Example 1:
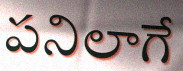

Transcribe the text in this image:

పనిలాగే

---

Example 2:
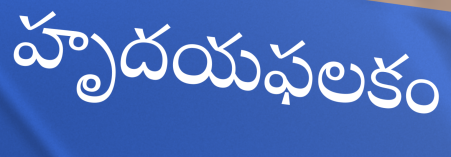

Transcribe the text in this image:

హృదయఫలకం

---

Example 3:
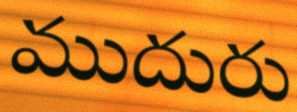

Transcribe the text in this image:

ముదురు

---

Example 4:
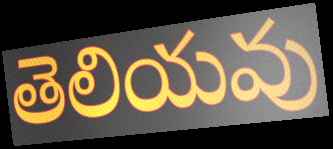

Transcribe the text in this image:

తెలియవు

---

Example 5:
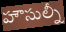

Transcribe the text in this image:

హౌసుల్నీ